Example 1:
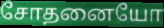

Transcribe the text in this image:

சோதனையோ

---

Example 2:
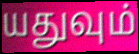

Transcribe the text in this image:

யதுவும்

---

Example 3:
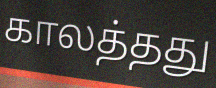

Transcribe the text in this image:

காலத்தது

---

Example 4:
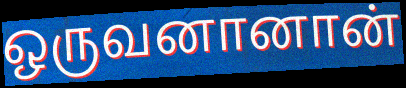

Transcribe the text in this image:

ஒருவனானான்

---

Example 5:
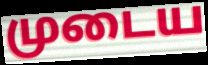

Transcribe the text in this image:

முடைய